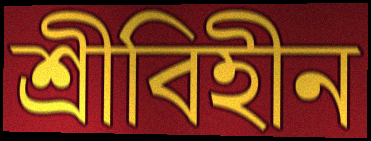
শ্রীবিহীন